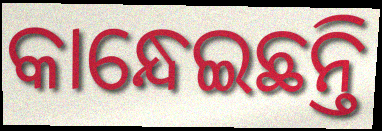
କାନ୍ଧେଇଛନ୍ତି